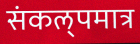
संकल्पमात्र